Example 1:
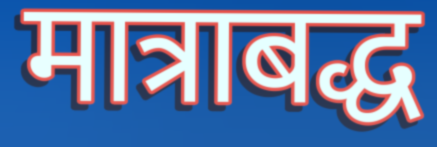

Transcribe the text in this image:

मात्राबद्ध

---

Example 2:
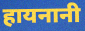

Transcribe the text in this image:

हायनानी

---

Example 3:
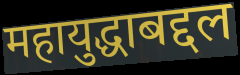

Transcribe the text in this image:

महायुद्धाबद्दल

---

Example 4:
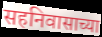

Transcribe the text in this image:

सहनिवासाच्या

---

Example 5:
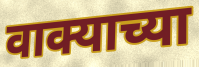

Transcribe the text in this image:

वाक्याच्या